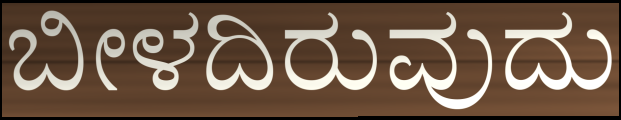
ಬೀಳದಿರುವುದು